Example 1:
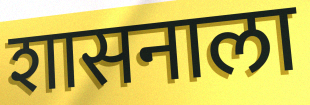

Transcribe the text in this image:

शासनाला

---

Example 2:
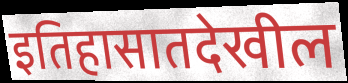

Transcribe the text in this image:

इतिहासातदेखील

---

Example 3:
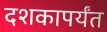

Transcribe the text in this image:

दशकापर्यंत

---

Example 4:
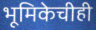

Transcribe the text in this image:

भूमिकेचीही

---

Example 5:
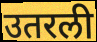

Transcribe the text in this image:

उतरली